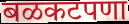
बळकटपणा